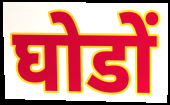
घोडों